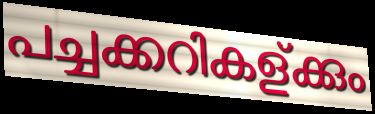
പച്ചക്കറികള്ക്കും